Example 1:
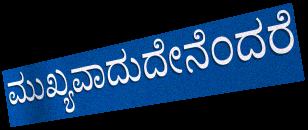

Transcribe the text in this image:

ಮುಖ್ಯವಾದುದೇನೆಂದರೆ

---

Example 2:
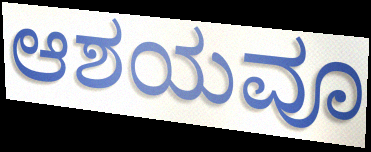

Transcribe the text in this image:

ಆಶಯವೂ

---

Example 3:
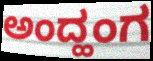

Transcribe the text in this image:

ಅಂದ್ಹಂಗ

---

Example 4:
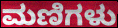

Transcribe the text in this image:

ಮಣಿಗಳು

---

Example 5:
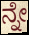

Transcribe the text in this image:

ನ್ನೇ